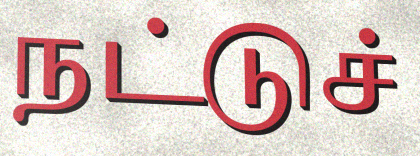
நட்டுச்